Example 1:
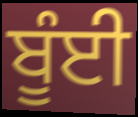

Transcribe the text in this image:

ਬੂੰਈ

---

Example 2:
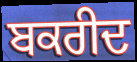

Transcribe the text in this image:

ਬਕਰੀਦ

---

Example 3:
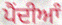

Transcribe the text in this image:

ਪੈੰਦੀਆੰ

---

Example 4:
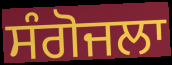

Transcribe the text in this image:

ਸੰਗੋਜਲਾ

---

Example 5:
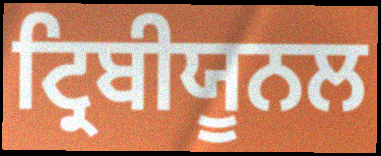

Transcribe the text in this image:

ਟ੍ਰਿਬੀਯੂਨਲ